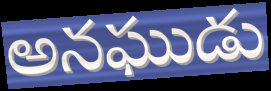
అనఘుడు